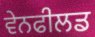
ਵੇਨਫੀਲਡ